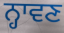
ਨ੍ਹਾਵਣ